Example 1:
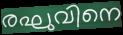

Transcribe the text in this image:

രഘുവിനെ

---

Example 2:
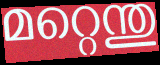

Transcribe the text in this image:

മറ്റെന്തു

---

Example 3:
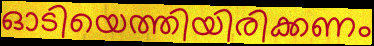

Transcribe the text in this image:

ഓടിയെത്തിയിരിക്കണം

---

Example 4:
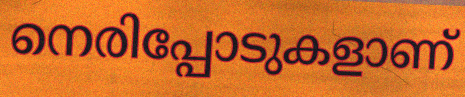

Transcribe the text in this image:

നെരിപ്പോടുകളാണ്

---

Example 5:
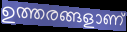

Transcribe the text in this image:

ഉത്തരങ്ങളാണ്